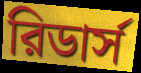
রিডার্স